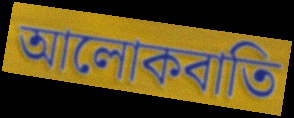
আলোকবাতি